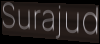
Surajud